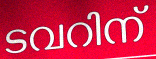
ടവറിന്